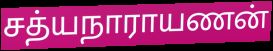
சத்யநாராயணன்